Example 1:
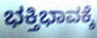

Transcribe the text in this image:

ಭಕ್ತಿಭಾವಕ್ಕೆ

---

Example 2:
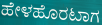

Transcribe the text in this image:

ಹೇಳಹೊರಟಾಗ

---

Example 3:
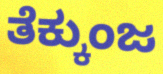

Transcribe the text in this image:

ತೆಕ್ಕುಂಜ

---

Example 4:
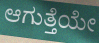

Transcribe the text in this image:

ಆಗುತ್ತೆಯೇ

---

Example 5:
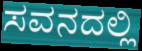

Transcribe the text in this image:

ಸವನದಲ್ಲಿ